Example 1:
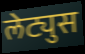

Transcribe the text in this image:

लेट्युस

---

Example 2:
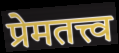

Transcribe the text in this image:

प्रेमतत्त्व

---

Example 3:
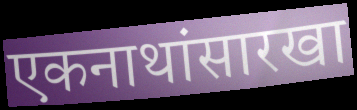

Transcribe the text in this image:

एकनाथांसारखा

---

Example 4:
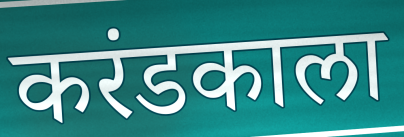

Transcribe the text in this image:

करंडकाला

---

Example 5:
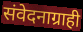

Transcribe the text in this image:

संवेदनाग्राही